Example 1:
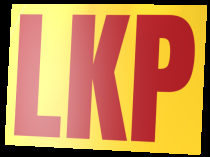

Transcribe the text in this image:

LKP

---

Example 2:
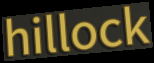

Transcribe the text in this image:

hillock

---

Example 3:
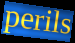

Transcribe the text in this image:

perils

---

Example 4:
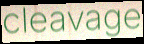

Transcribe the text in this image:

cleavage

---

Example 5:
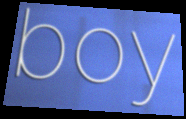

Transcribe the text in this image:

boy